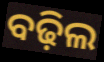
ବଢ଼ିଲ